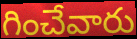
గించేవారు